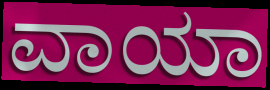
ವಾಯಾ